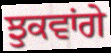
ਝੁਕਵਾਂਗੇ